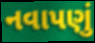
નવાપણું